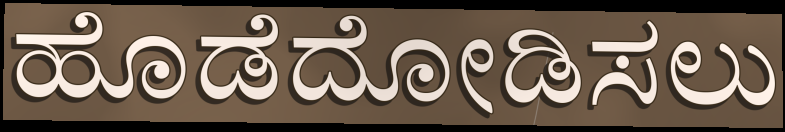
ಹೊಡೆದೋಡಿಸಲು